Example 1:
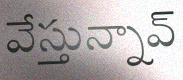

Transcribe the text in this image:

వేస్తున్నావ్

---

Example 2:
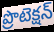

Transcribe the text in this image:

ప్రొటెక్షన్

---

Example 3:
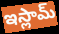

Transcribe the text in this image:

ఇస్లామ్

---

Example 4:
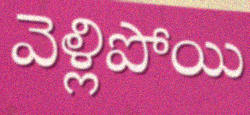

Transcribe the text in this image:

వెళ్లిపోయి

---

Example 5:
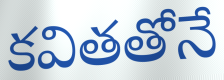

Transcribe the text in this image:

కవితతోనే